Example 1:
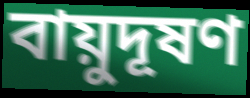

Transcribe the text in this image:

বায়ুদূষণ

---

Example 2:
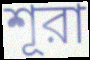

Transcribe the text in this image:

শূরা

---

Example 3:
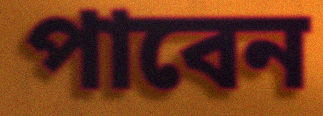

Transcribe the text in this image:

পাবেন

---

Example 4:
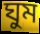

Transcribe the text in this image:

ঘুম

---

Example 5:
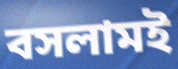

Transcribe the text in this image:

বসলামই